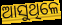
ଆସୁଥିଳେ